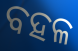
ବହଳ